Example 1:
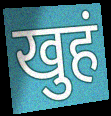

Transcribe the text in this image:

खुहं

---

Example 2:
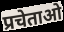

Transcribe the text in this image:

प्रचेताओ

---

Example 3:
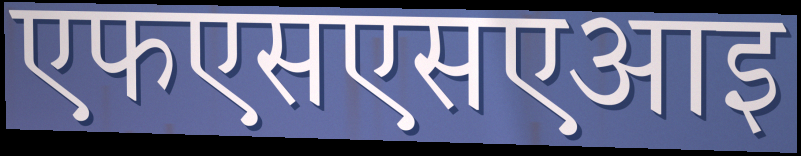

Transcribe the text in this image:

एफएसएसएआइ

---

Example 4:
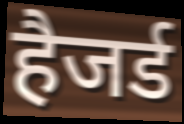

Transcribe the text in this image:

हैजर्ड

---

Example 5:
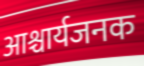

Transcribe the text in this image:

आश्चार्यजनक